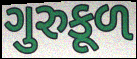
ગુરુકૂળ